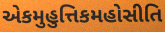
એકમુહુત્તિકમહોસીતિ